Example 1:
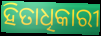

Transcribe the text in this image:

ହିତାଧିକାରୀ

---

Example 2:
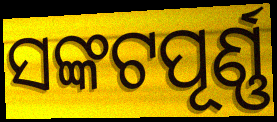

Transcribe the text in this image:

ସଙ୍କଟପୂର୍ଣ୍ଣ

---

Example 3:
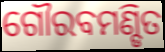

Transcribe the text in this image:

ଗୌରବମଣ୍ଡିତ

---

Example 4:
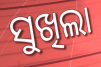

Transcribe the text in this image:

ସୁଖିଲା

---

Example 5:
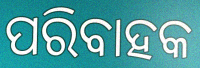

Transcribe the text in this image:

ପରିବାହକ